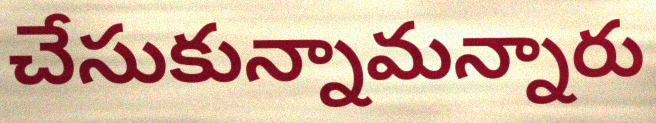
చేసుకున్నామన్నారు